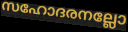
സഹോദരനല്ലോ